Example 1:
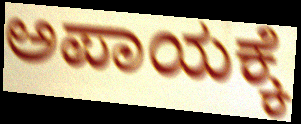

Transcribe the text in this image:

ಅಪಾಯಕ್ಕೆ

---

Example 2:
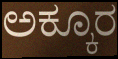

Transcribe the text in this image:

ಅಕ್ಕೂರ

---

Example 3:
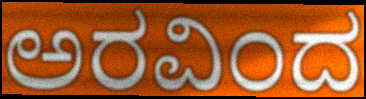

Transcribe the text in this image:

ಅರವಿಂದ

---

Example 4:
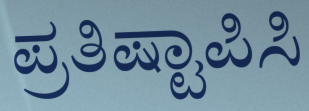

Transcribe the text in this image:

ಪ್ರತಿಷ್ಟಾಪಿಸಿ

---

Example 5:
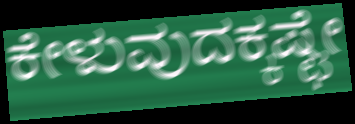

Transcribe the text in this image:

ಕೇಳುವುದಕ್ಕಷ್ಟೇ